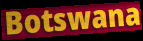
Botswana